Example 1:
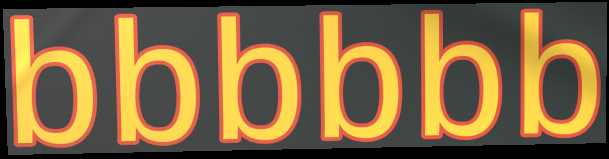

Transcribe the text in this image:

bbbbbb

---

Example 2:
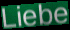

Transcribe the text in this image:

Liebe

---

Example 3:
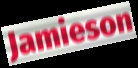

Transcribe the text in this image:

Jamieson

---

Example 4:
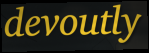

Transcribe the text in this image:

devoutly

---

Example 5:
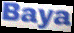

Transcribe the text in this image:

Baya